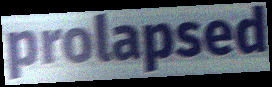
prolapsed